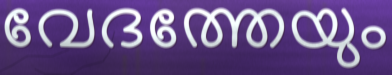
വേദത്തേയും